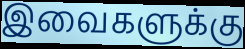
இவைகளுக்கு